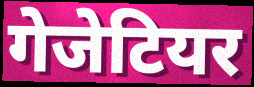
गेजेटियर